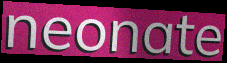
neonate